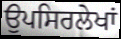
ਉਪਸਿਰਲੇਖਾਂ